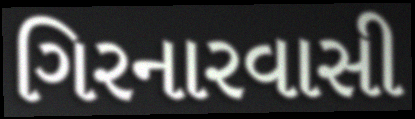
ગિરનારવાસી